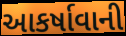
આકર્ષાવાની